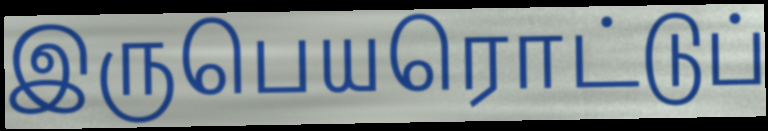
இருபெயரொட்டுப்